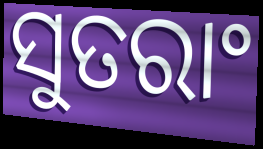
ସୁତରାଂ